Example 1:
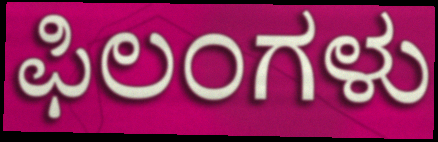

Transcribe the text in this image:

ಫಿಲಂಗಳು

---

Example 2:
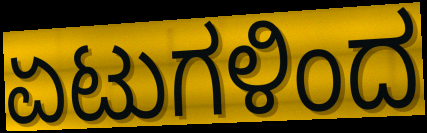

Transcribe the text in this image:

ಏಟುಗಳಿಂದ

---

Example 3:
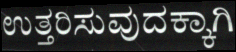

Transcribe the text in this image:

ಉತ್ತರಿಸುವುದಕ್ಕಾಗಿ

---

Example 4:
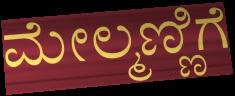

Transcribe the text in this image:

ಮೇಲ್ಮಣ್ಣಿಗೆ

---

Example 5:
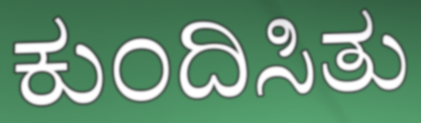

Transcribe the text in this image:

ಕುಂದಿಸಿತು